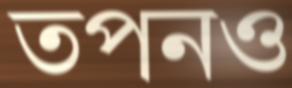
তপনও